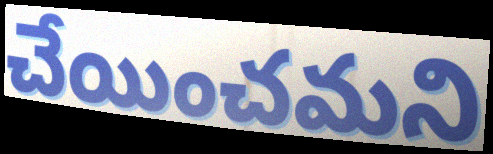
చేయించమని